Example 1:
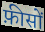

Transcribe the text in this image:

फ़ीसों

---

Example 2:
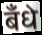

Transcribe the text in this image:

बँधे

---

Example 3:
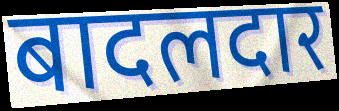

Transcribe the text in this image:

बादलदार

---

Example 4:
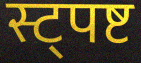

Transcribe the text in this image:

स्ट्पष्ट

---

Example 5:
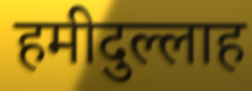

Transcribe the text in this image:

हमीदुल्लाह